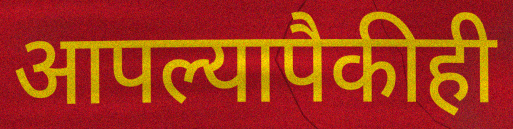
आपल्यापैकीही